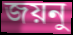
জয়নু